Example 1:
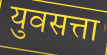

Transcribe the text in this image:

युवसत्ता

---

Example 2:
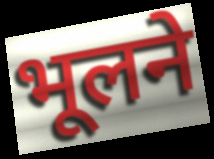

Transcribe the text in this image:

भूलने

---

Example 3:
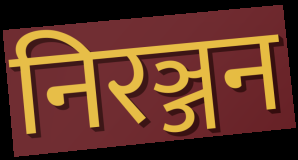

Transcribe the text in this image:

निरञ्जन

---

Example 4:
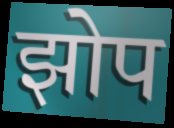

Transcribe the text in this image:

झोप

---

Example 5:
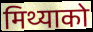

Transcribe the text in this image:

मिथ्याको